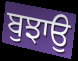
ਬੁਝਾਉ